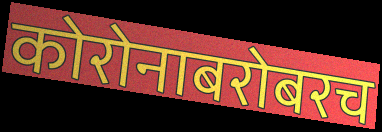
कोरोनाबरोबरच